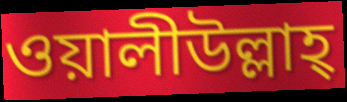
ওয়ালীউল্লাহ্